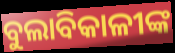
ବୁଲାବିକାଳୀଙ୍କ